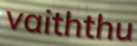
vaiththu